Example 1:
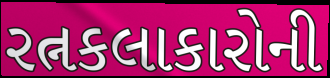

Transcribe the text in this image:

રત્નકલાકારોની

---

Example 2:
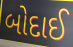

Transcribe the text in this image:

બોદાઈ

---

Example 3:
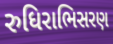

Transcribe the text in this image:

રુધિરાભિસરણ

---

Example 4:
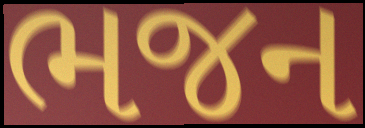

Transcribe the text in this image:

ભજન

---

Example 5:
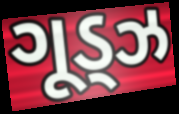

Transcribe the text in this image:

ગૂડ્ઝ